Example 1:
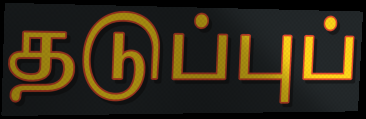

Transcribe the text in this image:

தடுப்புப்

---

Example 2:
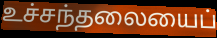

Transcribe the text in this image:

உச்சந்தலையைப்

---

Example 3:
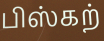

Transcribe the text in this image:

பிஸ்கற்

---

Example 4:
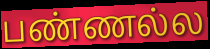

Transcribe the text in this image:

பண்ணல்ல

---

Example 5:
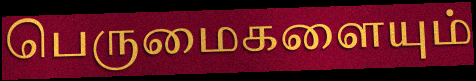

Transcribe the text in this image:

பெருமைகளையும்